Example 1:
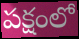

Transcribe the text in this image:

పక్షంలో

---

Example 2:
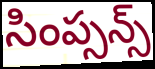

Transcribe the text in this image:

సింప్సన్స్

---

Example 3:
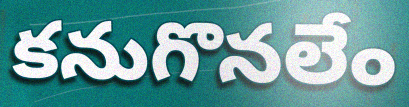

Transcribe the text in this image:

కనుగొనలేం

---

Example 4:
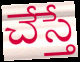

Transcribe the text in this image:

చేస్తే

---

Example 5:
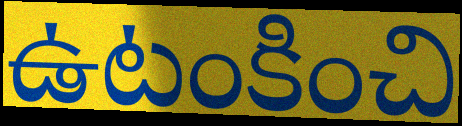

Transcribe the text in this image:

ఉటంకించి